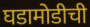
घडामोडीची